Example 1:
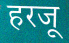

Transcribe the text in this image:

हरजू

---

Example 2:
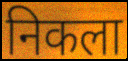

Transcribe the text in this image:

निकला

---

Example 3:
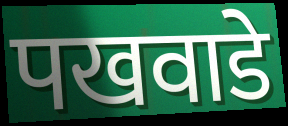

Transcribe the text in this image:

पखवाडे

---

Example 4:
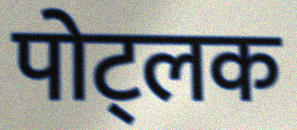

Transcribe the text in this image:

पोट्लक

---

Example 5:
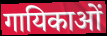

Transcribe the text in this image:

गायिकाओं